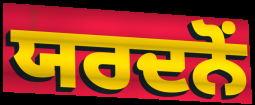
ਯਰਦਨੋਂ